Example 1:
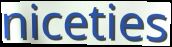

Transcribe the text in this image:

niceties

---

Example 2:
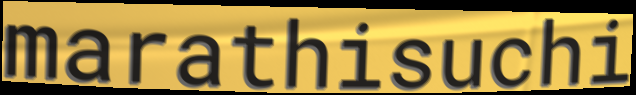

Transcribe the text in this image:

marathisuchi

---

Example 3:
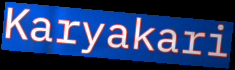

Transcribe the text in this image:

Karyakari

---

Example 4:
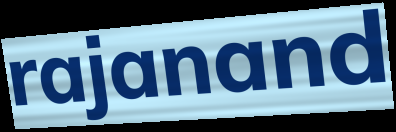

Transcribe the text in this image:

rajanand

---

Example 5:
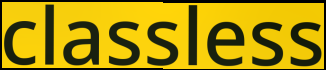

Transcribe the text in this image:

classless